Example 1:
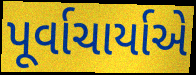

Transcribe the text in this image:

પૂર્વાચાર્યાએ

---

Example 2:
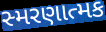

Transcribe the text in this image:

સ્મરણાત્મક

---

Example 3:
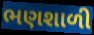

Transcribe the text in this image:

ભણશાળી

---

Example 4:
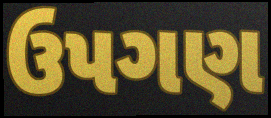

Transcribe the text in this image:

ઉપગણ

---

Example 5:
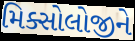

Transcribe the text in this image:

મિક્સોલોજીને